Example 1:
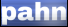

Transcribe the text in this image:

pahn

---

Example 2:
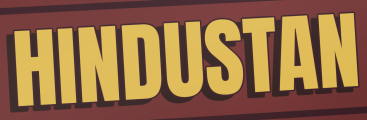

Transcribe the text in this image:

HINDUSTAN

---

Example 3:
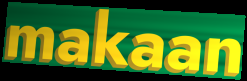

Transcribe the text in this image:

makaan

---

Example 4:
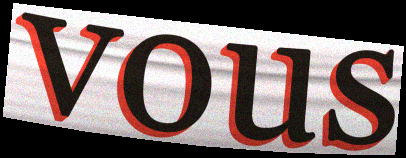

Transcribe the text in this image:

vous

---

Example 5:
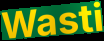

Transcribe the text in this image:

Wasti